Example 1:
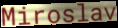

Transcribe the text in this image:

Miroslav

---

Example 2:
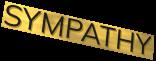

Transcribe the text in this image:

SYMPATHY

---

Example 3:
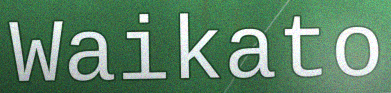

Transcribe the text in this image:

Waikato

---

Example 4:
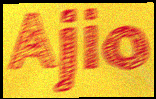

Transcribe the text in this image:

Ajio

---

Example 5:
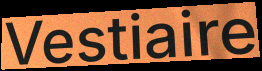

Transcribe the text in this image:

Vestiaire